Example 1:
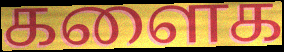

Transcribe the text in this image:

களைக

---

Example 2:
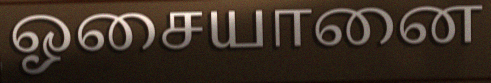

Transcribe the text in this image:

ஓசையானை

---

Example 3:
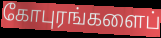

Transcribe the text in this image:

கோபுரங்களைப்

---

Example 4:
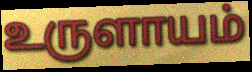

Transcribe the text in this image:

உருளாயம்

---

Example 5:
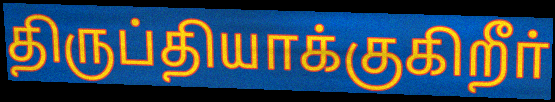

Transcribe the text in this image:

திருப்தியாக்குகிறீர்